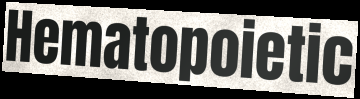
Hematopoietic